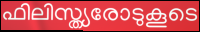
ഫിലിസ്ത്യരോടുകൂടെ